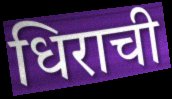
धिराची